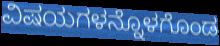
ವಿಷಯಗಳನ್ನೊಳಗೊಂಡ